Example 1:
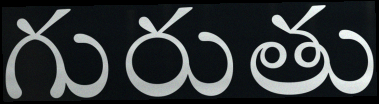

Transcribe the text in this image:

గురుతు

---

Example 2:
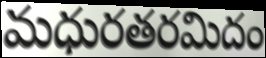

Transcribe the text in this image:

మధురతరమిదం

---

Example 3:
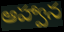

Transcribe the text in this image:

ఆహ్వాన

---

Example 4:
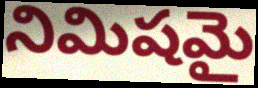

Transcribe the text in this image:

నిమిషమై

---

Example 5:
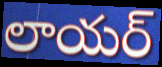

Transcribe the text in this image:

లాయర్